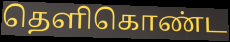
தெளிகொண்ட